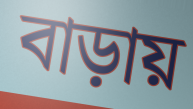
বাড়ায়